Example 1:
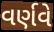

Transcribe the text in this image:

વર્ણવે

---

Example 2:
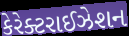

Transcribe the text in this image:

કેરેક્ટરાઈઝેશન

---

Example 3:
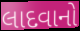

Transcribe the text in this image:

લાદવાનો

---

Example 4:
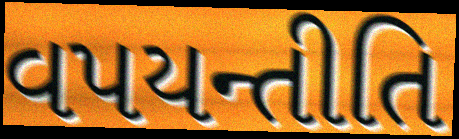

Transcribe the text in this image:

વપયન્તીતિ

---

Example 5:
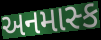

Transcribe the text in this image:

અનમાસ્ક